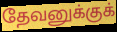
தேவனுக்குக்